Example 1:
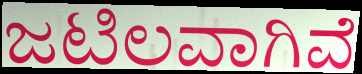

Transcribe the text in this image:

ಜಟಿಲವಾಗಿವೆ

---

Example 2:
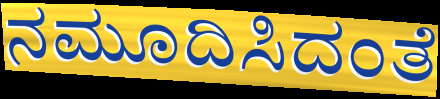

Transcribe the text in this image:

ನಮೂದಿಸಿದಂತೆ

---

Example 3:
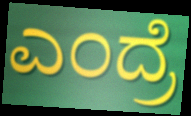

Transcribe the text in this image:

ಎಂದ್ರೆ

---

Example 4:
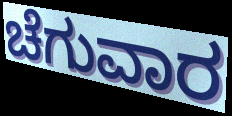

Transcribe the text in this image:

ಚೆಗುವಾರ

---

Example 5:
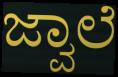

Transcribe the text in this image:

ಜ್ವಾಲೆ